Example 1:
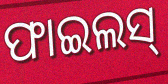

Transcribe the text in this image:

ଫାଇଲସ୍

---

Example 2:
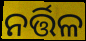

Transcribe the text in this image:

ନର୍ତ୍ତିଳ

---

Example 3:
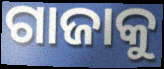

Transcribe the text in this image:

ଗାଜାକୁ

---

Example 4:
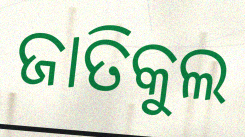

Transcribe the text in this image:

ଜାତିକୁଲ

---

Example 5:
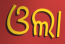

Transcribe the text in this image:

ଓଲା